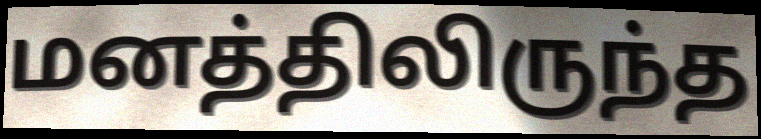
மனத்திலிருந்த